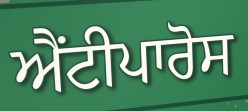
ਐਂਟੀਪਾਰੋਸ